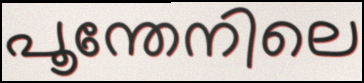
പൂന്തേനിലെ